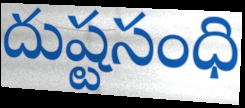
దుష్టసంధి